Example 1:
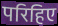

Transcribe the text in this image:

परिहिए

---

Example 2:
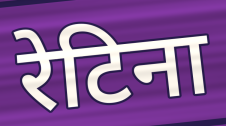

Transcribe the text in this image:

रेटिना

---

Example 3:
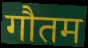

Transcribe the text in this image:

गौतम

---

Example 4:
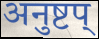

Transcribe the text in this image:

अनुष्टप्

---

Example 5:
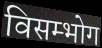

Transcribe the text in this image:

विसम्भोग